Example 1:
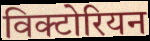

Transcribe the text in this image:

विक्टोरियन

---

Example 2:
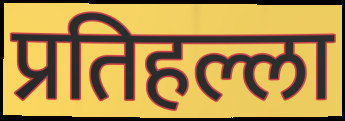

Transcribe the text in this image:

प्रतिहल्ला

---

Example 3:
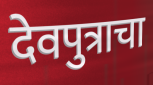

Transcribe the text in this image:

देवपुत्राचा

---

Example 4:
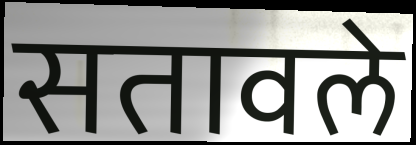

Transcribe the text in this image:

सतावले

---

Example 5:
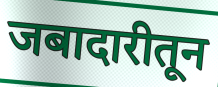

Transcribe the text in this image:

जबादारीतून